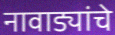
नावाड्यांचे